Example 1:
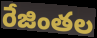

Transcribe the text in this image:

రేజింతల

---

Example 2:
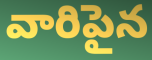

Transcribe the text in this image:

వారిపైన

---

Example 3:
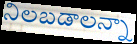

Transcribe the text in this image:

నిలబడాలన్నా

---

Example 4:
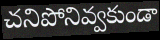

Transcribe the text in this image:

చనిపోనివ్వకుండా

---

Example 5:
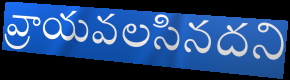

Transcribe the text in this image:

వ్రాయవలసినదని